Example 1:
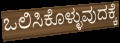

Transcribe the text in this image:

ಒಲಿಸಿಕೊಳ್ಳುವುದಕ್ಕೆ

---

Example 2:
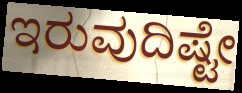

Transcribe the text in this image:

ಇರುವುದಿಷ್ಟೇ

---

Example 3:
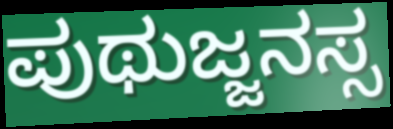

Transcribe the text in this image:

ಪುಥುಜ್ಜನಸ್ಸ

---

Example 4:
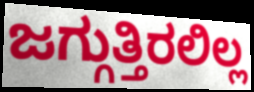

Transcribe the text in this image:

ಜಗ್ಗುತ್ತಿರಲಿಲ್ಲ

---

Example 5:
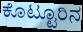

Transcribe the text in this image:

ಕೊಟ್ಟೂರಿನ